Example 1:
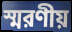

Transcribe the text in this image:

স্মরণীয়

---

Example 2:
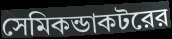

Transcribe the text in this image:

সেমিকন্ডাকটরের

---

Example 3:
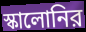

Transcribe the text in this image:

স্কালোনির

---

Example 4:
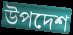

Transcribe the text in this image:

উপদেশ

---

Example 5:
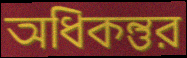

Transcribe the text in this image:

অধিকন্তুর